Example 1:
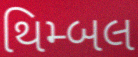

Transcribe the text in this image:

થિમ્બલ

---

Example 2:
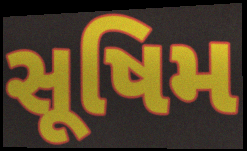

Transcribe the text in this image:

સૂષિમ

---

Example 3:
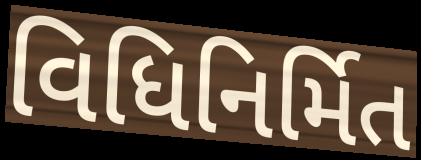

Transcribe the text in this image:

વિધિનિર્મિત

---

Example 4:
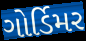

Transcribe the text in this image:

ગોર્ડિમર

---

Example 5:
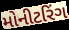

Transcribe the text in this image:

મોનીટરિંગ